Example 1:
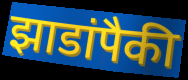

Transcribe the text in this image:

झाडांपैकी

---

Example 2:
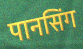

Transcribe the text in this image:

पानसिंग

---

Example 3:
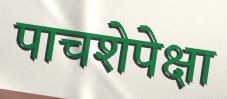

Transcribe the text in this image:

पाचशेपेक्षा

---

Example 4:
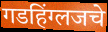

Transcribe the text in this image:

गडहिंग्लजचे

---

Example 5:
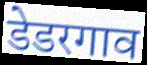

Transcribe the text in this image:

डेडरगाव